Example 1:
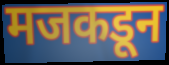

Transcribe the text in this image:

मजकडून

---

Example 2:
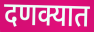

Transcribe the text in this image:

दणक्यात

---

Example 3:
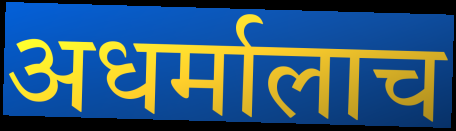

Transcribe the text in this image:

अधर्मालाच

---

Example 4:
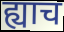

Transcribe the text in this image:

ह्याच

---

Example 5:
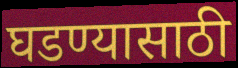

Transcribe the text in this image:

घडण्यासाठी